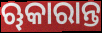
ୠକାରାନ୍ତ